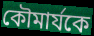
কৌমার্যকে